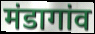
मंडागांव